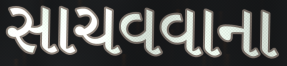
સાચવવાના